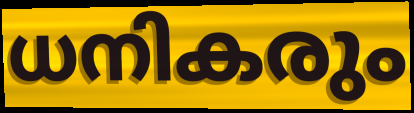
ധനികരും